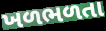
ખળભળતા